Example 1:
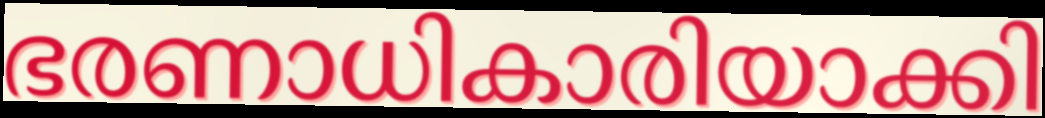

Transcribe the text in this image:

ഭരണാധികാരിയാക്കി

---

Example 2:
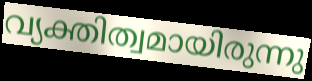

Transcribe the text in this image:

വ്യക്തിത്വമായിരുന്നു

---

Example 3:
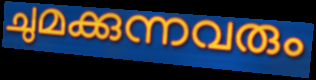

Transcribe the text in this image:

ചുമക്കുന്നവരും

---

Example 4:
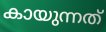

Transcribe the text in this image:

കായുന്നത്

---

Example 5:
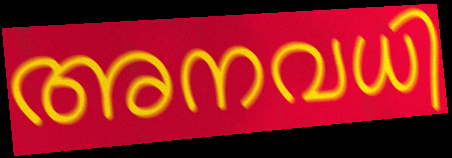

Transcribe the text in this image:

അനവധി